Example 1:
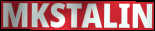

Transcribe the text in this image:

MKSTALIN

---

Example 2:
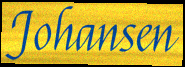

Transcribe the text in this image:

Johansen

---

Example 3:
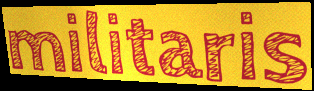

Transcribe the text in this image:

militaris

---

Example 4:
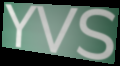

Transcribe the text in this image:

YVS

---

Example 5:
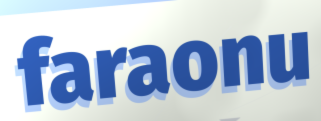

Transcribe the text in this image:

faraonu